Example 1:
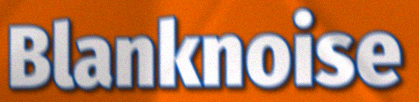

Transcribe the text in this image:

Blanknoise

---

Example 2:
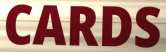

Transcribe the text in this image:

CARDS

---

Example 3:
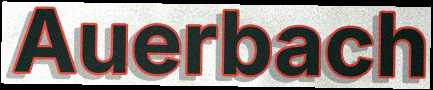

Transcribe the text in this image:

Auerbach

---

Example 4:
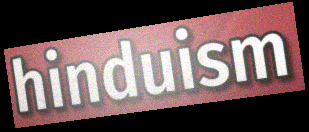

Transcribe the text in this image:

hinduism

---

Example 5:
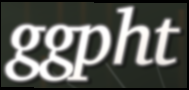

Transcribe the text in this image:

ggpht